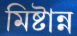
মিষ্টান্ন